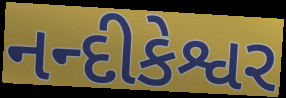
નન્દીકેશ્વર